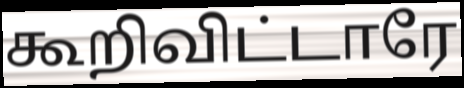
கூறிவிட்டாரே